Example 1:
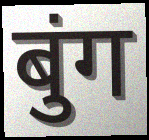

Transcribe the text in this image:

बुंग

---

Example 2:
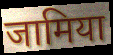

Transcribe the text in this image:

जामिया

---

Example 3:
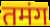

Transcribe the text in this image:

तमंग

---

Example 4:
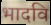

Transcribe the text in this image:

भादवि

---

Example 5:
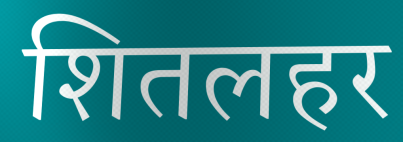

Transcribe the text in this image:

शितलहर